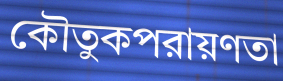
কৌতুকপরায়ণতা